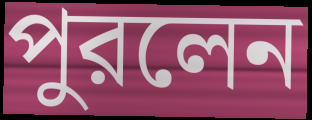
পুরলেন